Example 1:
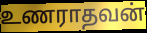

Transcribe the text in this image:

உணராதவன்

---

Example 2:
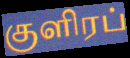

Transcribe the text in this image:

குளிரப்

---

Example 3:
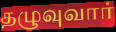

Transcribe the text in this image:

தழுவுவார்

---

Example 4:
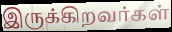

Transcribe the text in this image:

இருக்கிறவர்கள்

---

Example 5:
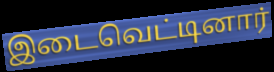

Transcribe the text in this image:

இடைவெட்டினார்